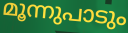
മൂന്നുപാടും